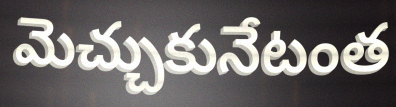
మెచ్చుకునేటంత